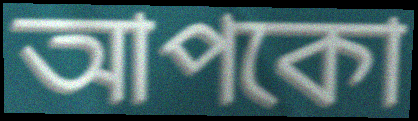
আপকো